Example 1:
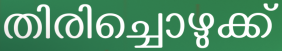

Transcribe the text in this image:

തിരിച്ചൊഴുക്ക്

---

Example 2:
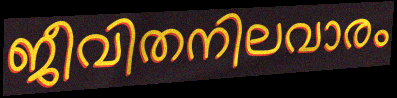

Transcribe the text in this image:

ജീവിതനിലവാരം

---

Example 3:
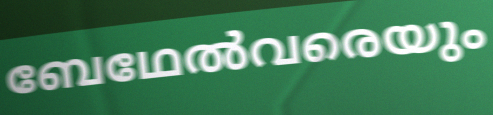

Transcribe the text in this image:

ബേഥേൽവരെയും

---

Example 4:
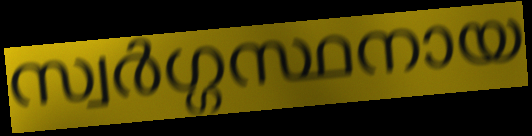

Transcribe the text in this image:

സ്വർഗ്ഗസ്ഥനായ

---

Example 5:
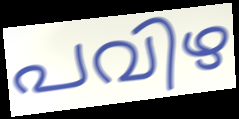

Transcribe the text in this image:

പവിഴ